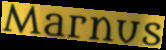
Marnus